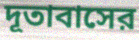
দূতাবাসের